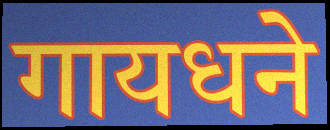
गायधने